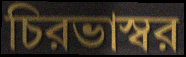
চিরভাস্বর